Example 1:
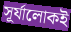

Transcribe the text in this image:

সূর্যালোকই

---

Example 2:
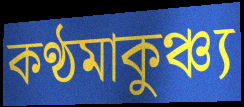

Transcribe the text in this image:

কণ্ঠমাকুঞ্চ্য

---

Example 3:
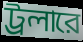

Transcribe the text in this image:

ট্রলারে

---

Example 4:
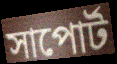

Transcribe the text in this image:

সাপোর্ট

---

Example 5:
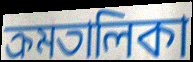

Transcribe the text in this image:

ক্রমতালিকা